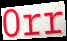
Orr